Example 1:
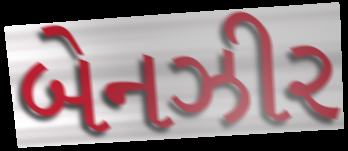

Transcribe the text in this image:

બેનઝીર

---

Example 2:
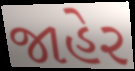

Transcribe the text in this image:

જાહેર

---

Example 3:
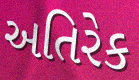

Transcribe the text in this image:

અતિરેક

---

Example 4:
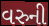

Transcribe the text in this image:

વરુની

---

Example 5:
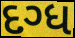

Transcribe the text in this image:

દગ્ધ